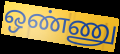
ஒண்ணு